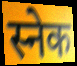
स्‍नेक